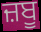
ਜ਼ਬੂ